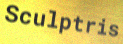
Sculptris